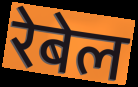
रेबेल